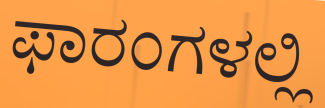
ಫಾರಂಗಳಲ್ಲಿ